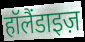
हॉलैंडाइज़